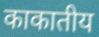
काकातीय